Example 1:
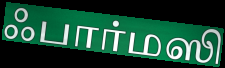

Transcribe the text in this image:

ஃபார்மஸி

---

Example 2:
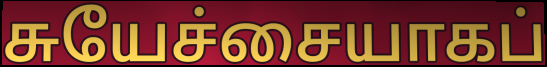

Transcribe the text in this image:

சுயேச்சையாகப்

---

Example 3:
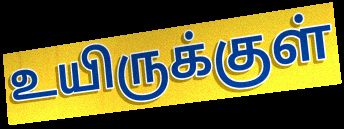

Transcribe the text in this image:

உயிருக்குள்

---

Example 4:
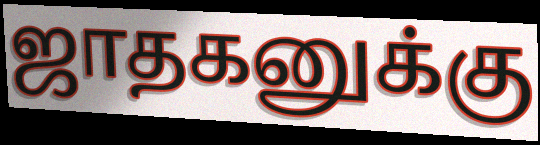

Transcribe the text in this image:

ஜாதகனுக்கு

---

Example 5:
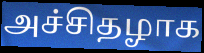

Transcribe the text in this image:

அச்சிதழாக